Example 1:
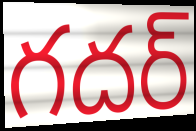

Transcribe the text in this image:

గదర్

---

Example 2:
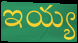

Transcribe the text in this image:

ఇయ్య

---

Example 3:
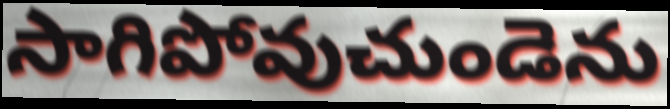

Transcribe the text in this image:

సాగిపోవుచుండెను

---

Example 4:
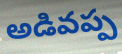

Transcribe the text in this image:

అడివప్ప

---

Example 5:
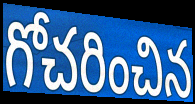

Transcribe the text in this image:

గోచరించిన